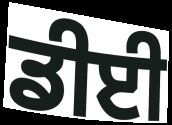
ਡੀਈ